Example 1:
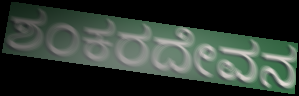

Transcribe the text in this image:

ಶಂಕರದೇವನ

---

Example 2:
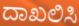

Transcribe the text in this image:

ದಾಖಲಿಸಿ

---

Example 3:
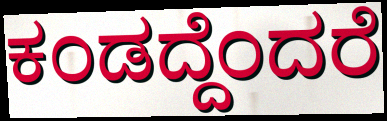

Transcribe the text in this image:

ಕಂಡದ್ದೆಂದರೆ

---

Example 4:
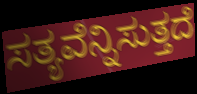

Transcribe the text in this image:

ಸತ್ಯವೆನ್ನಿಸುತ್ತದೆ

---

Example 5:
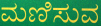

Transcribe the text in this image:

ಮಣಿಸುವ